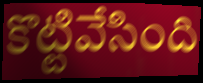
కొట్టివేసింది